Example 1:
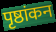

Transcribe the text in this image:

पृष्ठांकन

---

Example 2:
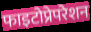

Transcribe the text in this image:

फाइटोप्रेपरेशन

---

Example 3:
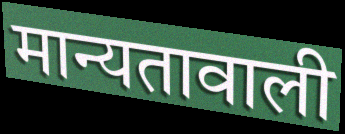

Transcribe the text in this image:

मान्यतावाली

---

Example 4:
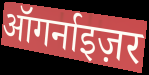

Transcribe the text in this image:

ऑगर्नाइज़र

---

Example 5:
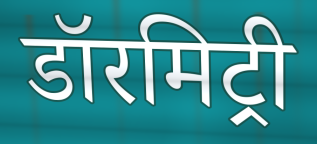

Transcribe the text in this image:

डॉरमिट्री